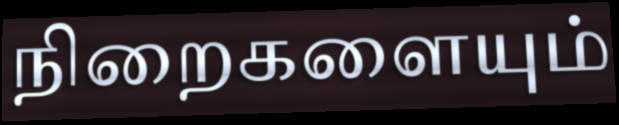
நிறைகளையும்